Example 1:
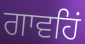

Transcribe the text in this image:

ਗਾਵਹਿਂ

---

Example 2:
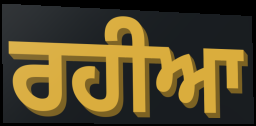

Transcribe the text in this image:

ਰਹੀਆ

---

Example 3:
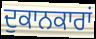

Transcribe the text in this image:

ਦੁਕਾਨਕਾਰਾਂ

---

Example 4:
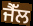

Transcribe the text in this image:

ਜੈੱਲ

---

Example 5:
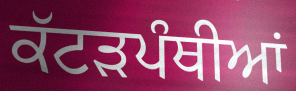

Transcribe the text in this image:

ਕੱਟੜਪੰਥੀਆਂ